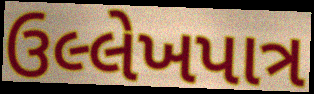
ઉલ્લેખપાત્ર